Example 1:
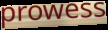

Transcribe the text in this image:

prowess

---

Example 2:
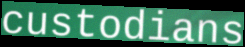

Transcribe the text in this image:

custodians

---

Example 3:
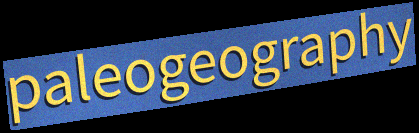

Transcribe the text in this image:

paleogeography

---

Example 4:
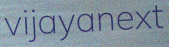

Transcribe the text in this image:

vijayanext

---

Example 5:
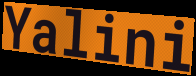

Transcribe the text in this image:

Yalini